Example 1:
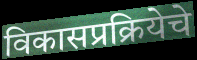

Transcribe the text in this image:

विकासप्रक्रियेचे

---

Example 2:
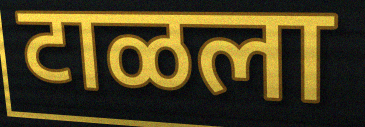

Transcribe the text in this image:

टाळला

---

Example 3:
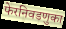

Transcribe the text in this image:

फेरनिवडणुका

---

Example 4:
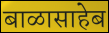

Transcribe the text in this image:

बाळासाहेब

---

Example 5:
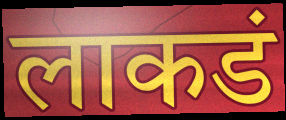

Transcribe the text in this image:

लाकडं